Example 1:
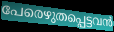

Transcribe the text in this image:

പേരെഴുതപ്പെട്ടവൻ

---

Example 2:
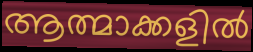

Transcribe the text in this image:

ആത്മാക്കളിൽ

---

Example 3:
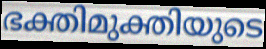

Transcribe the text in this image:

ഭക്തിമുക്തിയുടെ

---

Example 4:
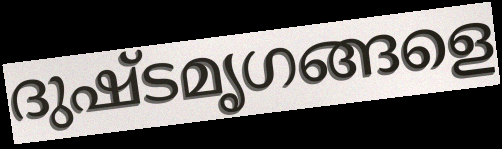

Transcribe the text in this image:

ദുഷ്ടമൃഗങ്ങളെ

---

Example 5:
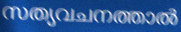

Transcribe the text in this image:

സത്യവചനത്താൽ